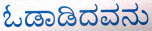
ಓಡಾಡಿದವನು